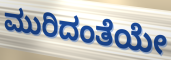
ಮುರಿದಂತೆಯೇ